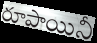
రూపాయినీ